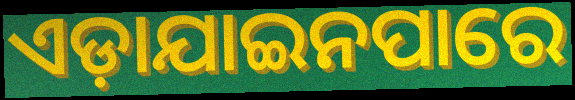
ଏଡ଼ାଯାଇନପାରେ